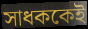
সাধককেই